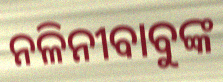
ନଳିନୀବାବୁଙ୍କ